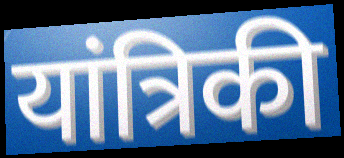
यांत्रिकी